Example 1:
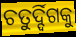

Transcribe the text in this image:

ଚତୁର୍ଦ୍ଦିଗକୁ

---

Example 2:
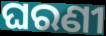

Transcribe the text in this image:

ଘରଣୀ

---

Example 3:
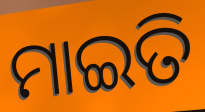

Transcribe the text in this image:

ମାଇତି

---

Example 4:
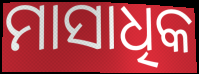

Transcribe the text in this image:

ମାସାଧିକ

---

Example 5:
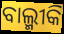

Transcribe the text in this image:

ବାଲ୍ମୀକି